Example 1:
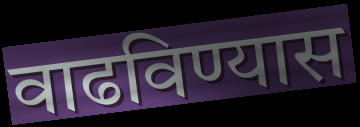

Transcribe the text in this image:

वाढविण्यास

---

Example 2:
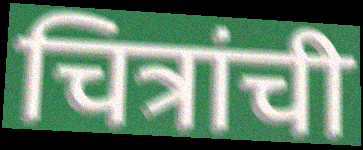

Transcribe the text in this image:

चित्रांची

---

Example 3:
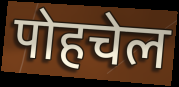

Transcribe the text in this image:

पोहचेल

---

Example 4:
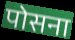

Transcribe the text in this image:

पोसना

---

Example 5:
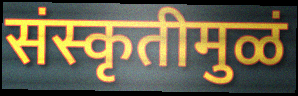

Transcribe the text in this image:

संस्कृतीमुळं